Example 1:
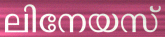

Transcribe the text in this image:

ലിനേയസ്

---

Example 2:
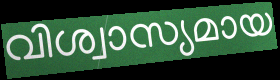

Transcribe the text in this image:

വിശ്വാസ്യമായ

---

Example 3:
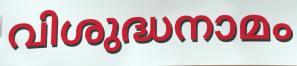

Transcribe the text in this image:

വിശുദ്ധനാമം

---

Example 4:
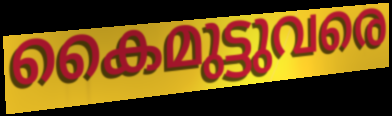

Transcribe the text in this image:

കൈമുട്ടുവരെ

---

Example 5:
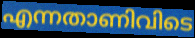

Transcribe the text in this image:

എന്നതാണിവിടെ